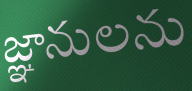
జ్ఞానులను